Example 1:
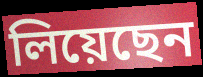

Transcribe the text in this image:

লিয়েছেন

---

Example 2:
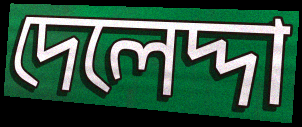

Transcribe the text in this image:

দেলেদ্দা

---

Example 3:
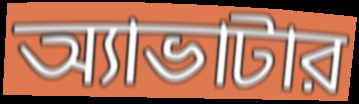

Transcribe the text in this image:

অ্যাভাটার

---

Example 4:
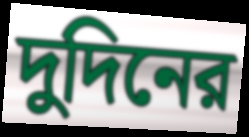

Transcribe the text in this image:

দুদিনের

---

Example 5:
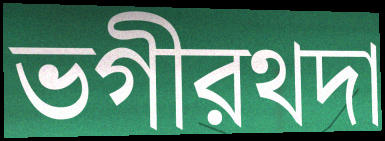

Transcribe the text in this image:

ভগীরথদা